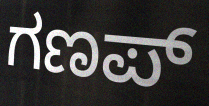
ಗಣಪ್